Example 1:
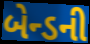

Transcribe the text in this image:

બેન્ડની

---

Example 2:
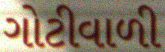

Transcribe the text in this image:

ગોટીવાળી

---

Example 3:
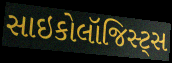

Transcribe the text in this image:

સાઇકોલૉજિસ્ટ્સ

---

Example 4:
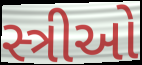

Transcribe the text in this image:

સ્ત્રીઓ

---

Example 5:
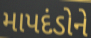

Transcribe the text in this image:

માપદંડોને